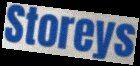
Storeys